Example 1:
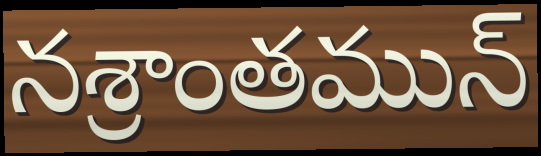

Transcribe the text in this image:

నశ్రాంతమున్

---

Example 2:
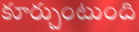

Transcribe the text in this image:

కూర్చుంటుంది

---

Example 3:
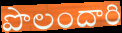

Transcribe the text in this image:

పొలందారి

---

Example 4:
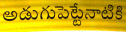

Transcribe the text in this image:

అడుగుపెట్టేనాటికి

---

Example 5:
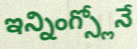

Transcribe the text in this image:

ఇన్నింగ్స్లోనే